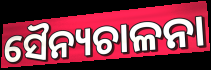
ସୈନ୍ୟଚାଳନା